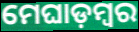
ମେଘାଡ଼ମ୍ବର